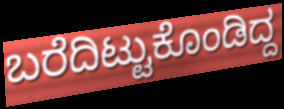
ಬರೆದಿಟ್ಟುಕೊಂಡಿದ್ದ